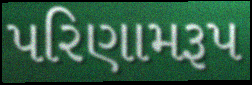
પરિણામરૂપ